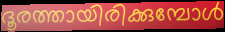
ദൂരത്തായിരിക്കുമ്പോൾ